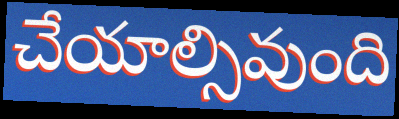
చేయాల్సివుంది